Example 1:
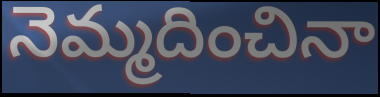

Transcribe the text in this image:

నెమ్మదించినా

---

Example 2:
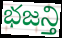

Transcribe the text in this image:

భజన్తి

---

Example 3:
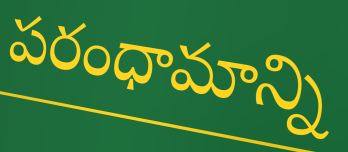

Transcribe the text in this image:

పరంధామాన్ని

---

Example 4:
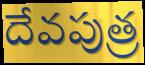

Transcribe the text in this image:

దేవపుత్ర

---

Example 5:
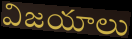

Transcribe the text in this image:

విజయాలు